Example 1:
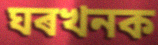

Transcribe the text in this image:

ঘৰখনক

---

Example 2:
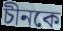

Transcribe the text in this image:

চীনকে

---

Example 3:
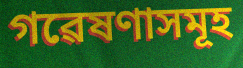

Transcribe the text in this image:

গৱেষণাসমূহ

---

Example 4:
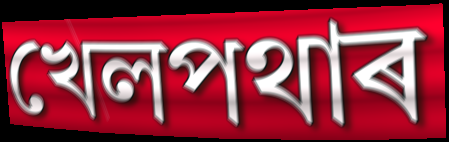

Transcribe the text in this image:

খেলপথাৰ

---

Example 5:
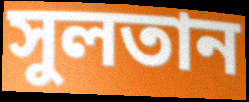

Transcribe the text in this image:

সুলতান